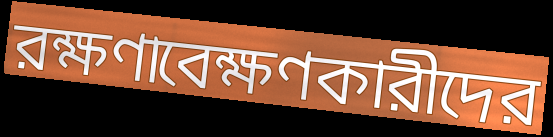
রক্ষণাবেক্ষণকারীদের